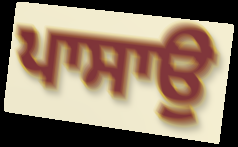
ਪਾਸਾਉ